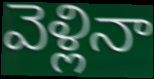
వెళ్లినా